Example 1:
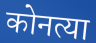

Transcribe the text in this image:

कोनत्या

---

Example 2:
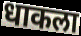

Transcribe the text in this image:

धाकला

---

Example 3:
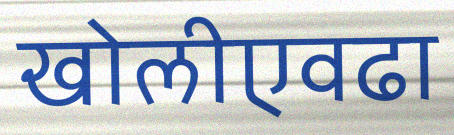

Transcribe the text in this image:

खोलीएवढा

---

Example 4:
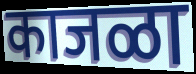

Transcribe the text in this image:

काजळा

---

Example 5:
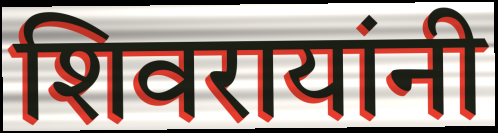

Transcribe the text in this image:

शिवरायांनी